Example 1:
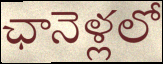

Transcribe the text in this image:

ఛానెళ్లలో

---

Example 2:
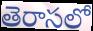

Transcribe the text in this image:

తెరాసలో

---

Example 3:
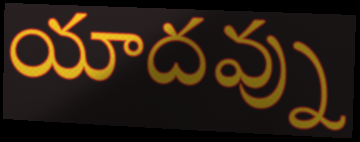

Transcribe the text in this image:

యాదవ్ను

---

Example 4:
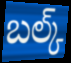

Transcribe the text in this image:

బల్క్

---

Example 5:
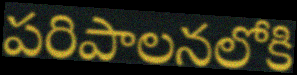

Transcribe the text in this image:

పరిపాలనలోకి